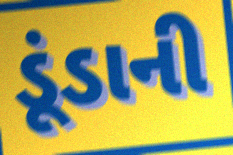
ડૂંડાની